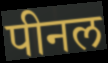
पीनल